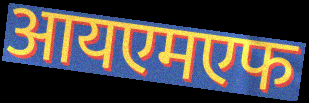
आयएमएफ